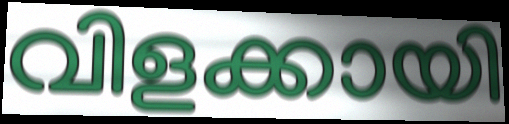
വിളക്കായി